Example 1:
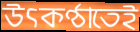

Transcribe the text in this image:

উৎকণ্ঠাতেই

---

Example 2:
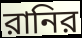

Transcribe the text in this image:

রানির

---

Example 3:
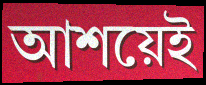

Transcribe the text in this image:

আশয়েই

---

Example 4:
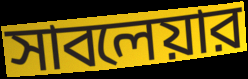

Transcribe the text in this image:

সাবলেয়ার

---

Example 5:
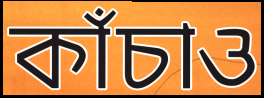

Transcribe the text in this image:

কাঁচাও